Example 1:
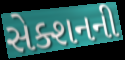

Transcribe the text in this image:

સેક્શનની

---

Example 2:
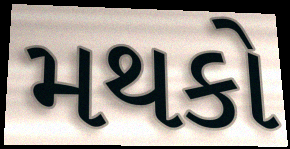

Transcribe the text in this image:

મથકો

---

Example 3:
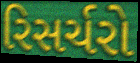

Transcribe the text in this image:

રિસર્ચરો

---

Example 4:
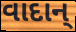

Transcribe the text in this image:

વાદાન્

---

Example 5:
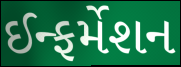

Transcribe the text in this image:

ઈન્ફર્મેશન